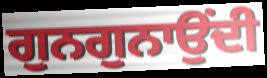
ਗੁਨਗੁਨਾਉਂਦੀ